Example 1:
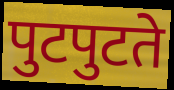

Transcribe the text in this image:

पुटपुटते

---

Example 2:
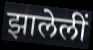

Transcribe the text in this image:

झालेलीं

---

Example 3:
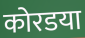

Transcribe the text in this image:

कोरडया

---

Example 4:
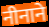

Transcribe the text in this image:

नीनाने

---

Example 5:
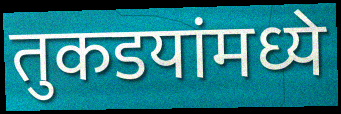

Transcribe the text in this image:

तुकडयांमध्ये